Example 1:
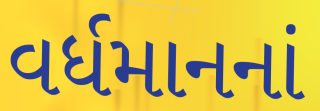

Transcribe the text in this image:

વર્ધમાનનાં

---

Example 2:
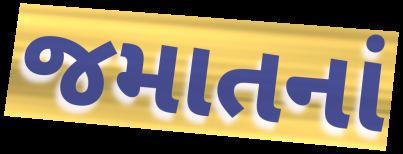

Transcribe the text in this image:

જમાતનાં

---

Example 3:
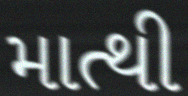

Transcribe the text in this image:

માત્થી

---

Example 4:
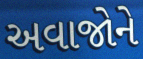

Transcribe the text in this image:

અવાજોને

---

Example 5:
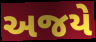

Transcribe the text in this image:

અજયે